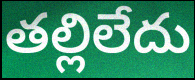
తల్లిలేదు